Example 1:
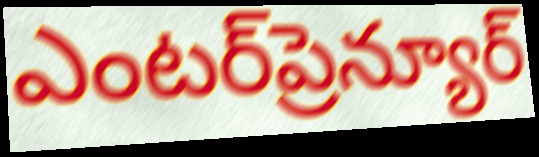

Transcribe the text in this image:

ఎంటర్‌ప్రెన్యూర్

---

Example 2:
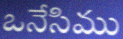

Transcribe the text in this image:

ఒనేసిము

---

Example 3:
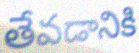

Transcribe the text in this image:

తేవడానికి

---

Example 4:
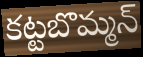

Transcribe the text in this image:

కట్టబొమ్మన్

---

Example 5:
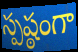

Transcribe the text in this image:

స్పష్ఠంగా